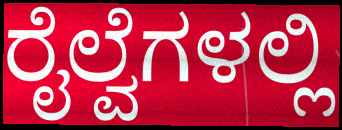
ರೈಲ್ವೆಗಳಲ್ಲಿ